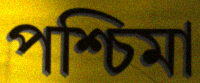
পশ্চিমা